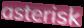
asterisk